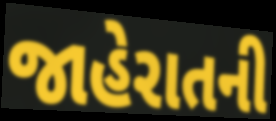
જાહેરાતની